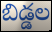
బిడ్డల